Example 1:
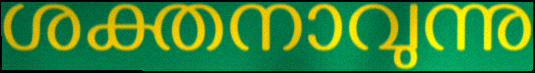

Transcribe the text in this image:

ശക്തനാവുന്നു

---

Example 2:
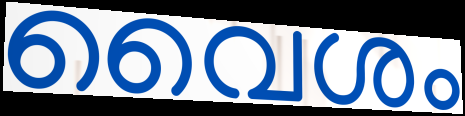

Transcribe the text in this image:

വൈശം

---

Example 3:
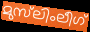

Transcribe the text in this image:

മുസ്‌ലിംലീഗ്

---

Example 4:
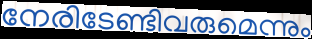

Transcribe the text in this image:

നേരിടേണ്ടിവരുമെന്നും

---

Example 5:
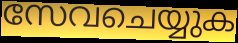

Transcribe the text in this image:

സേവചെയ്യുക